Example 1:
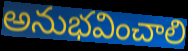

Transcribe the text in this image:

అనుభవించాలి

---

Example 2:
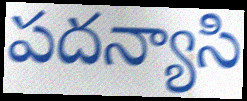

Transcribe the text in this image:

పదన్యాసి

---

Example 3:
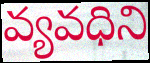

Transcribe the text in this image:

వ్యవధిని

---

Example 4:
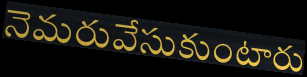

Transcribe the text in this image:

నెమరువేసుకుంటారు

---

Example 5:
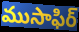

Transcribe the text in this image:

ముసాఫిర్